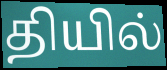
தியில்